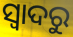
ସ୍ୱାଦରୁ